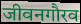
जीवनगौरव